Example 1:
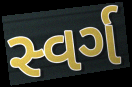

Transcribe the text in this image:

સ્વર્ગ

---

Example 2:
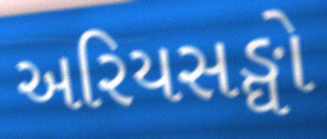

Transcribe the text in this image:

અરિયસઙ્ઘો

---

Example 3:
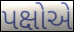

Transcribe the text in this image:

પક્ષોએ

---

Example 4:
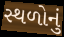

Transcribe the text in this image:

સ્થળોનું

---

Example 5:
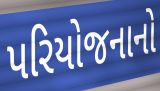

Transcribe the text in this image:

પરિયોજનાનો